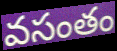
వసంతం